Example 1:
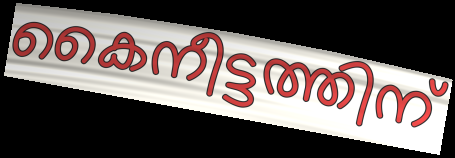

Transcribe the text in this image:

കൈനീട്ടത്തിന്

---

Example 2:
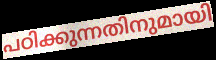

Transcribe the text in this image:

പഠിക്കുന്നതിനുമായി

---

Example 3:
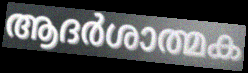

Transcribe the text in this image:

ആദർശാത്മക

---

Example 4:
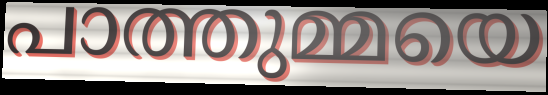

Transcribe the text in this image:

പാത്തുമ്മയെ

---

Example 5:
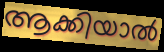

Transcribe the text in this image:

ആക്കിയാൽ